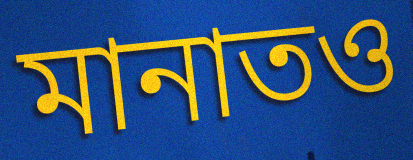
মানাতও